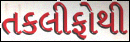
તકલીફોથી